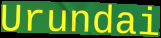
Urundai